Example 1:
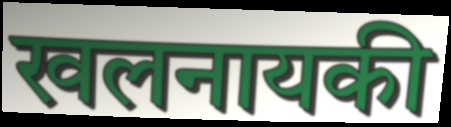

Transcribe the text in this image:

खलनायकी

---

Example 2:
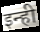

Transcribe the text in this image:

इन्ही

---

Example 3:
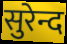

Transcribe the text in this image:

सुरेन्द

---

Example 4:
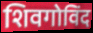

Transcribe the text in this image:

शिवगोविंद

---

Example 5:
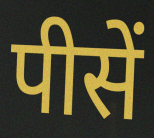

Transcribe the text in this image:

पीसें